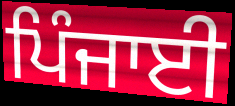
ਪਿੰਜਾਈ